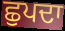
ਛੁਪਦਾ